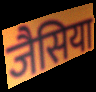
जैसिया